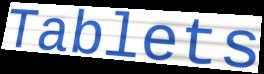
Tablets